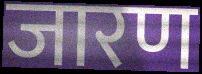
जारण